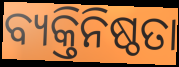
ବ୍ୟକ୍ତିନିଷ୍ଠତା